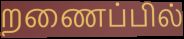
றணைப்பில்